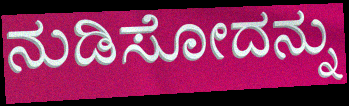
ನುಡಿಸೋದನ್ನು